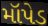
મૉપેડ